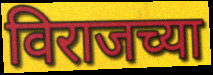
विराजच्या